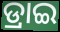
ଡ୍ରାଇ